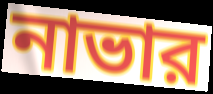
নাভার